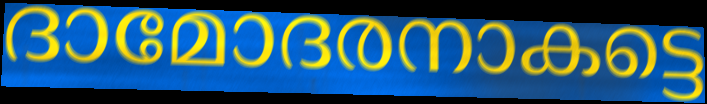
ദാമോദരനാകട്ടെ